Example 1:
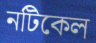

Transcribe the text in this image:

নটিকেল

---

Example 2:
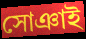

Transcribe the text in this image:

সোঞাই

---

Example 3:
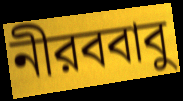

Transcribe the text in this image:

নীরববাবু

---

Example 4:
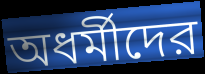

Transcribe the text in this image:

অধর্মীদের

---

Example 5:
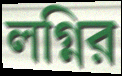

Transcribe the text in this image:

লগ্নির